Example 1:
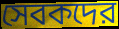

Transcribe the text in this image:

সেবকদের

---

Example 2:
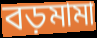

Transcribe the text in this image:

বড়মামা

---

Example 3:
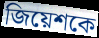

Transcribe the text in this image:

জিয়েশকে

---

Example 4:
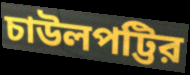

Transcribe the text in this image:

চাউলপট্টির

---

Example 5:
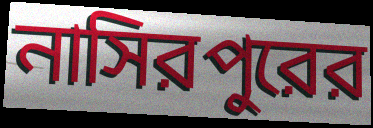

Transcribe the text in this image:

নাসিরপুরের